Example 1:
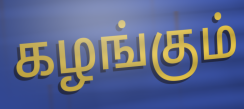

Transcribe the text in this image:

கழங்கும்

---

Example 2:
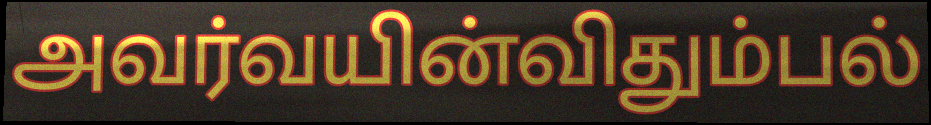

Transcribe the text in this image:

அவர்வயின்விதும்பல்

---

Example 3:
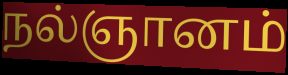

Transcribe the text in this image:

நல்ஞானம்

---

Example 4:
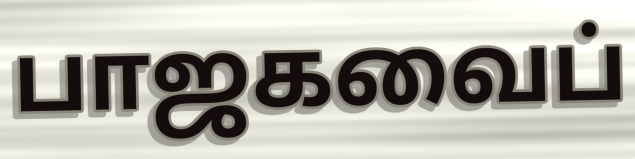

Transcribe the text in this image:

பாஜகவைப்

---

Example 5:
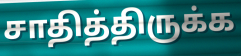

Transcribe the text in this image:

சாதித்திருக்க